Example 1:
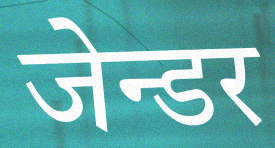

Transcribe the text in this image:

जेन्डर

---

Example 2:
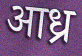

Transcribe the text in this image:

आध्र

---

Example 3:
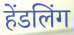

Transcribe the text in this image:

हेंडलिंग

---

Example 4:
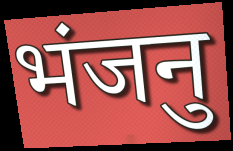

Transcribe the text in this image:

भंजनु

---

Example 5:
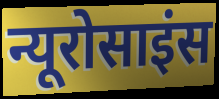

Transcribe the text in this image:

न्यूरोसाइंस